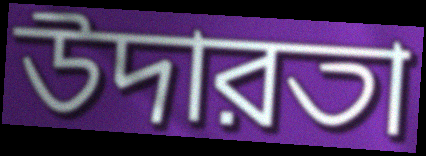
উদারতা